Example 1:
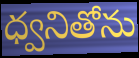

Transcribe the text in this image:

ధ్వనితోను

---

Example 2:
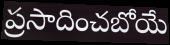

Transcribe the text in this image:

ప్రసాదించబోయే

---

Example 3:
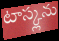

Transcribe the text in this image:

టాస్క్లను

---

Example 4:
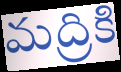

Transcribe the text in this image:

మద్రికి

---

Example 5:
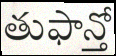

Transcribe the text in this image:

తుఫాన్తో